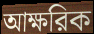
আক্ষরিক